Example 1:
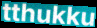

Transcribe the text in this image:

tthukku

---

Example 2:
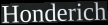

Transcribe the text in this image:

Honderich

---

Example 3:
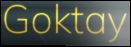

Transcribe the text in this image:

Goktay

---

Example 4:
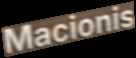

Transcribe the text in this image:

Macionis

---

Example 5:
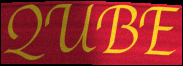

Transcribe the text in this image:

QUBE